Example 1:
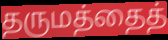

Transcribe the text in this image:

தருமத்தைத்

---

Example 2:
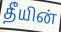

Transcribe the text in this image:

தீயின்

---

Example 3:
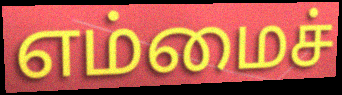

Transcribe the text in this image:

எம்மைச்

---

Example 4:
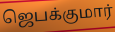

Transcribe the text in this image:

ஜெபக்குமார்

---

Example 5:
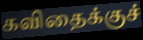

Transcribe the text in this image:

கவிதைக்குச்